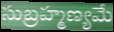
సుబ్రహ్మణ్యమే